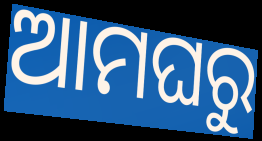
ଆମଘରୁ